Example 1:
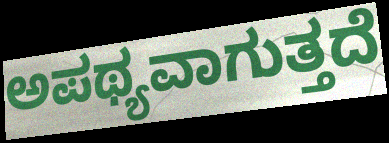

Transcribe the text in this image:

ಅಪಥ್ಯವಾಗುತ್ತದೆ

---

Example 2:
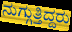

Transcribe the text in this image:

ನುಗ್ಗುತ್ತಿದ್ದರು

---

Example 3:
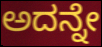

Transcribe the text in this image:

ಅದನ್ನೇ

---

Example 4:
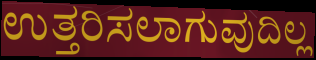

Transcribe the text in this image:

ಉತ್ತರಿಸಲಾಗುವುದಿಲ್ಲ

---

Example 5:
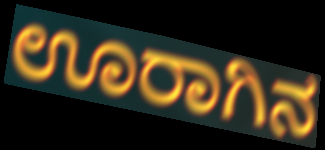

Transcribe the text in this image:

ಊರಾಗಿನ